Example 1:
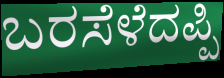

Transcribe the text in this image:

ಬರಸೆಳೆದಪ್ಪಿ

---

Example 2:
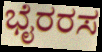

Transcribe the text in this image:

ಭೈರರಸ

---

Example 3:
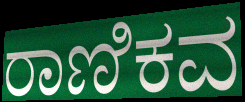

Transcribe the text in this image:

ರಾಣಿಕವ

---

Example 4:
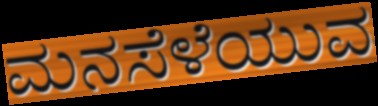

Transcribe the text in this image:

ಮನಸೆಳೆಯುವ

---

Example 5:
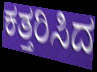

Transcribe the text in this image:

ಕತ್ತರಿಸಿದ